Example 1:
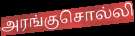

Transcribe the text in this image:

அரங்குசொல்லி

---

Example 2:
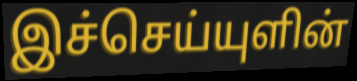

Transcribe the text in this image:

இச்செய்யுளின்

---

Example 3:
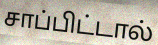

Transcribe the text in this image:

சாப்பிட்டால்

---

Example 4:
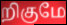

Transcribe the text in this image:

றிகுமே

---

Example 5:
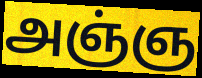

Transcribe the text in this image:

அஞ்ஞ